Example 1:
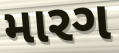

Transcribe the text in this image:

મારગ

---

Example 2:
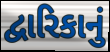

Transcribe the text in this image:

દ્વારિકાનું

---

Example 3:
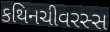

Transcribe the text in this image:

કથિનચીવરસ્સ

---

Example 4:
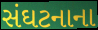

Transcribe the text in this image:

સંઘટનાના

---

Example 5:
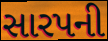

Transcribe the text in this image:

સારપની